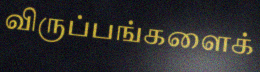
விருப்பங்களைக்